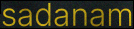
sadanam